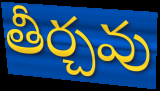
తీర్చవు